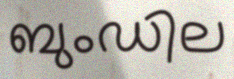
ബുംഡില